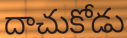
దాచుకోడు